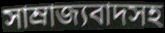
সাম্রাজ্যবাদসহ